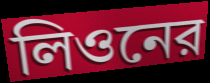
লিওনের